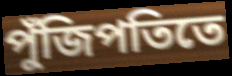
পুঁজিপতিতে